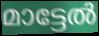
മാട്ടേൽ